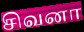
சிவனா